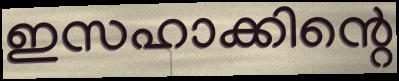
ഇസഹാക്കിന്റെ